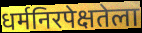
धर्मनिरपेक्षतेला